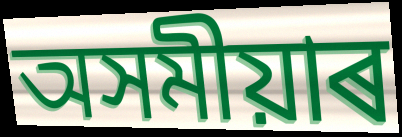
অসমীয়াৰ